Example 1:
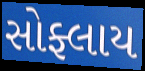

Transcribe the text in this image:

સોફ્લાય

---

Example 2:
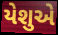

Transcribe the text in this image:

યેશુએ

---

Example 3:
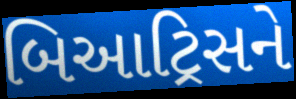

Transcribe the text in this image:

બિઆટ્રિસને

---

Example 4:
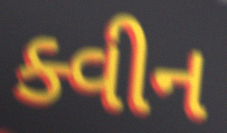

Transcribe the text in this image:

ક્વીન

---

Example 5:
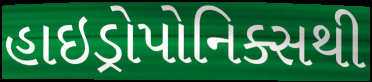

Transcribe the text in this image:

હાઇડ્રોપોનિક્સથી